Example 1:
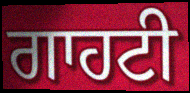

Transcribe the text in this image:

ਗਾਹਟੀ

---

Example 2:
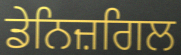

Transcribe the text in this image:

ਡੇਨਿਜ਼ਗਿਲ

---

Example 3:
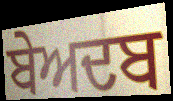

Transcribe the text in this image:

ਬੇਅਦਬ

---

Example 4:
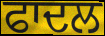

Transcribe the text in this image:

ਫਾਦਲ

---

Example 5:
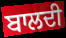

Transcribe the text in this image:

ਬਾਲਦੀ